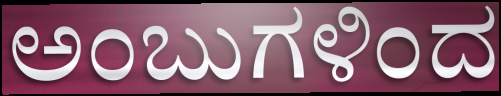
ಅಂಬುಗಳಿಂದ